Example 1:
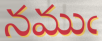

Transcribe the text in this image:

నముఁ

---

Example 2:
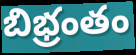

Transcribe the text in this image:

బిభ్రంతం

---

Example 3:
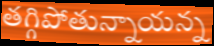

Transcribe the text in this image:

తగ్గిపోతున్నాయన్న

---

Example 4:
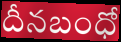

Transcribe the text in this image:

దీనబంధో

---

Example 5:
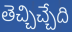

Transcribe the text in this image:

తెచ్చిచ్చేది